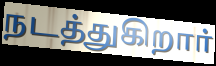
நடத்துகிறார்